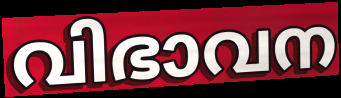
വിഭാവന